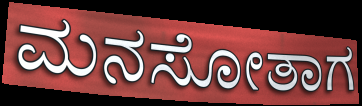
ಮನಸೋತಾಗ